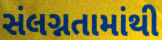
સંલગ્નતામાંથી